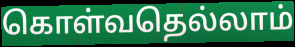
கொள்வதெல்லாம்